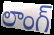
లాంగ్